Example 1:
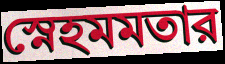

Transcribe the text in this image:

স্নেহমমতার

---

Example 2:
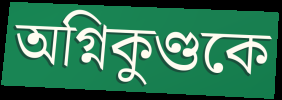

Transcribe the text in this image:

অগ্নিকুণ্ডকে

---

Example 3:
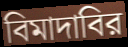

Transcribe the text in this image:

বিমাদাবির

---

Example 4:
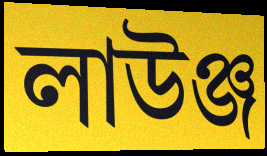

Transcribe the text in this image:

লাউঞ্জ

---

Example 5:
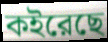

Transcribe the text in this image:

কইরেছে